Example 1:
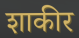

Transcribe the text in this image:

शाकीर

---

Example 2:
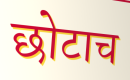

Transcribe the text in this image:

छोटाच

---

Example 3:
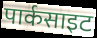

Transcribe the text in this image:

पार्कसाइट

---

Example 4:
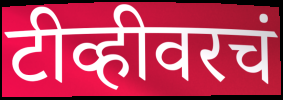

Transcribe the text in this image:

टीव्हीवरचं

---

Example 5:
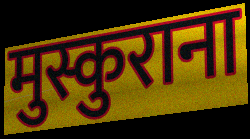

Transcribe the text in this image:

मुस्कुराना